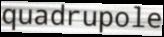
quadrupole